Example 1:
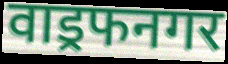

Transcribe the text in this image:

वाड्रफनगर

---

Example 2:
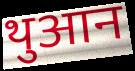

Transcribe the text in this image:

थुआन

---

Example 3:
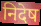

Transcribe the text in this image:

निदेष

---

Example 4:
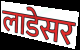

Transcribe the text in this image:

लाडेसर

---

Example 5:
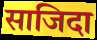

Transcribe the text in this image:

साजिदा